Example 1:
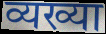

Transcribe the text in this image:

व्यख्या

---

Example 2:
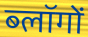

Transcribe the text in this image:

ब्‍लॉगों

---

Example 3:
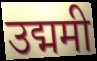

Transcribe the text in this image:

उद्ममी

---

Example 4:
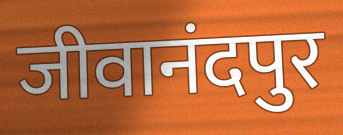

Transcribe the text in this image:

जीवानंदपुर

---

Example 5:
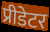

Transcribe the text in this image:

प्रीडेटर